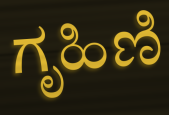
ಗೃಹಿಣಿ